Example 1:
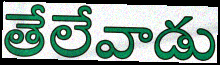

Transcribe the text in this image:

తేలేవాడు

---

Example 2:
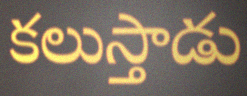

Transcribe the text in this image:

కలుస్తాడు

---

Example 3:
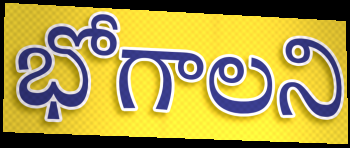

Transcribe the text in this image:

భోగాలని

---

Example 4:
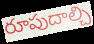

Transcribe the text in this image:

రూపుదాల్చి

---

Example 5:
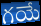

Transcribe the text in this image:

గయే